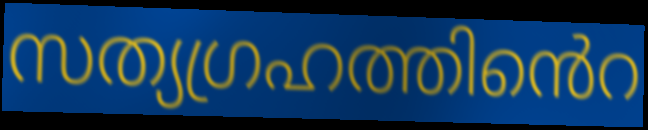
സത്യഗ്രഹത്തിൻെറ